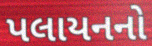
પલાયનનો